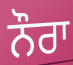
ਨੌਰਾ